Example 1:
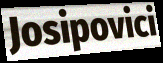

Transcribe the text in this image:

Josipovici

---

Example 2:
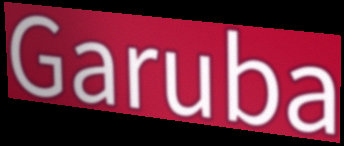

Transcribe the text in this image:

Garuba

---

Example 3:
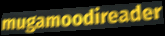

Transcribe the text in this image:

mugamoodireader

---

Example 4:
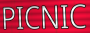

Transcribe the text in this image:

PICNIC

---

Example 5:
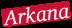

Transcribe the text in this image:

Arkana